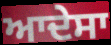
ਆਦੇਸਾ